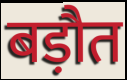
बड़ौत